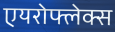
एयरोफ्लेक्स